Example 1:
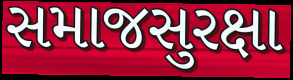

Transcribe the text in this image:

સમાજસુરક્ષા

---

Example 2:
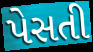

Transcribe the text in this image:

પેસતી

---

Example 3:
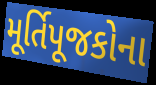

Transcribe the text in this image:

મૂર્તિપૂજકોના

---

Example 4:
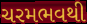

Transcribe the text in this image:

ચરમભવથી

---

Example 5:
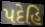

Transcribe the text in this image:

પદેહિ